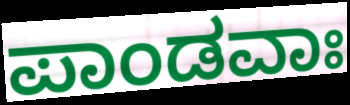
ಪಾಂಡವಾಃ